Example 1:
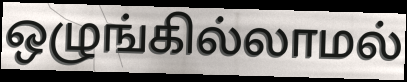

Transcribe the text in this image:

ஒழுங்கில்லாமல்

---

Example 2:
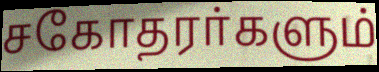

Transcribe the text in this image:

சகோதரர்களும்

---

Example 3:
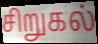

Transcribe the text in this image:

சிறுகல்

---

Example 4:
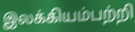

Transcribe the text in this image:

இலக்கியம்பற்றி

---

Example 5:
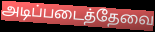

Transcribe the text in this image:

அடிப்படைத்தேவை